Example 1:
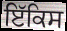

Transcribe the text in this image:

ਇੱਕਿਸ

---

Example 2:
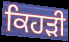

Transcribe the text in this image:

ਕਿਹੜੀ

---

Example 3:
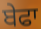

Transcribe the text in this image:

ਬੇਫਾ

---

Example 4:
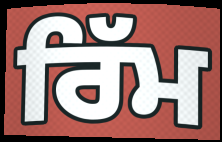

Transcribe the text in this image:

ਰਿੱਮ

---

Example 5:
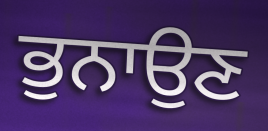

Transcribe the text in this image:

ਭੁਨਾਉਣ